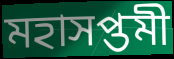
মহাসপ্তমী